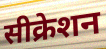
सीक्रेशन